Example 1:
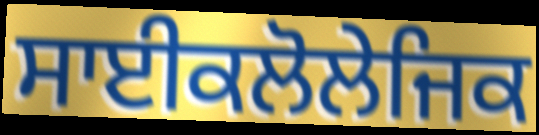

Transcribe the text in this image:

ਸਾਈਕਲੋਲੇਜਿਕ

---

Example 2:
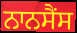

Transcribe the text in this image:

ਨਾਨਸੈਂਸ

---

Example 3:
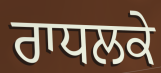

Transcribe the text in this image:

ਰਾਧਲਕੇ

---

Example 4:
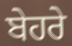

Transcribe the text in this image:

ਬੇਹਰੇ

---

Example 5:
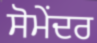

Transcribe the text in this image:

ਸੋਮੇਂਦਰ